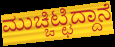
ಮುಚ್ಚಿಟ್ಟಿದ್ದಾನೆ